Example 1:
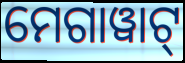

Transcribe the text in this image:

ମେଗାୱାଟ୍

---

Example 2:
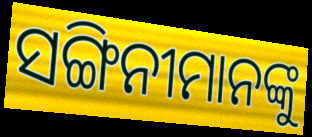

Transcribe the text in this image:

ସଙ୍ଗିନୀମାନଙ୍କୁ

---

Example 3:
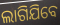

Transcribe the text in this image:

ଲାଗିଯିବେ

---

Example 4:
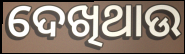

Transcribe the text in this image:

ଦେଖିଥାଉ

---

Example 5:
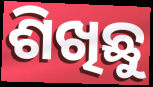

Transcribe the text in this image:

ଶିଖିଛୁ